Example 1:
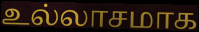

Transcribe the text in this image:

உல்லாசமாக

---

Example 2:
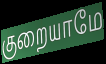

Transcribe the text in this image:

குறையாமே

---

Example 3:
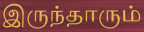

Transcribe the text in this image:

இருந்தாரும்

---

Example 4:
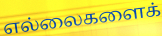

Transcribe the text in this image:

எல்லைகளைக்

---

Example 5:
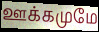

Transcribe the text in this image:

ஊக்கமுமே